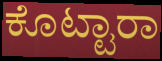
ಕೊಟ್ಟಾರಾ